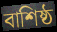
বাশিষ্ঠ